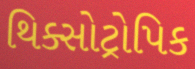
થિક્સોટ્રોપિક